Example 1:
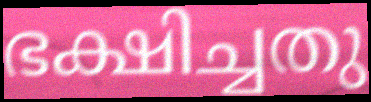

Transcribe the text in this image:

ഭക്ഷിച്ചതു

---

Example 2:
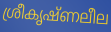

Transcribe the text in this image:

ശ്രീകൃഷ്ണലീല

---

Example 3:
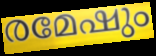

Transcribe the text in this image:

രമേഷും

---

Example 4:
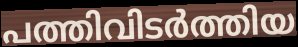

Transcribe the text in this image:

പത്തിവിടർത്തിയ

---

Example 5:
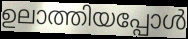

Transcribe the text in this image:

ഉലാത്തിയപ്പോൾ